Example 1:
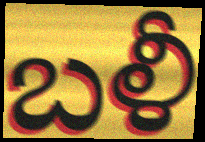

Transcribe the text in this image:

బళీ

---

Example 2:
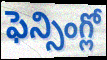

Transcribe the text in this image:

ఫెన్సింగ్లో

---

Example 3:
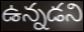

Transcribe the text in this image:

ఉన్నడని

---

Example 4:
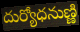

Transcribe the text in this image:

దుర్యోధనుణ్ణి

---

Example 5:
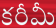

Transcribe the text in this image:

కరీమీ